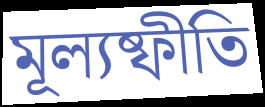
মূল্যষ্ফীতি